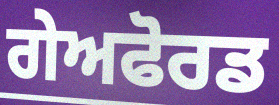
ਗੇਅਫੋਰਡ